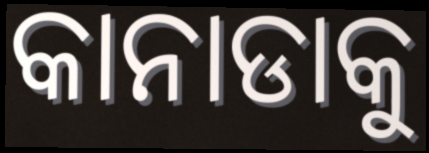
କାନାଡାକୁ